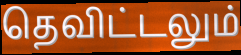
தெவிட்டலும்